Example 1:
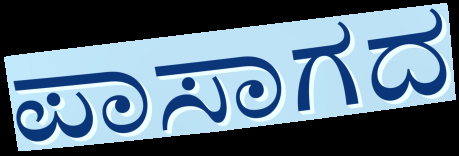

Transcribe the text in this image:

ಪಾಸಾಗದ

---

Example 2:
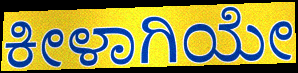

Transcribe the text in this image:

ಕೀಳಾಗಿಯೇ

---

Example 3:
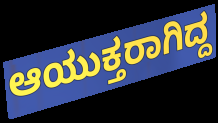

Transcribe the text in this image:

ಆಯುಕ್ತರಾಗಿದ್ದ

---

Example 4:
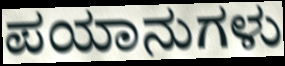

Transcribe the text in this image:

ಪಯಾನುಗಳು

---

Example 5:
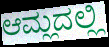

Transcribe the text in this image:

ಆಮ್ಲದಲ್ಲಿ